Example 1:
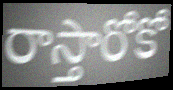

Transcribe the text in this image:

రాస్తారోకో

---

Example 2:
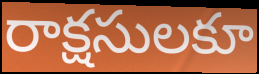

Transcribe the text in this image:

రాక్షసులకూ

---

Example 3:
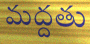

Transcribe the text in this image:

మద్దతు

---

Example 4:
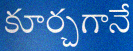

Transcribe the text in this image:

కూర్చగానే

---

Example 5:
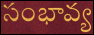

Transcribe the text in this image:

సంభావ్య